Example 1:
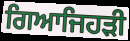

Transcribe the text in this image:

ਗਿਆਜਿਹੜੀ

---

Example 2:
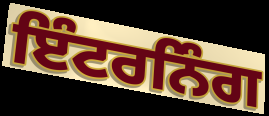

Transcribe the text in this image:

ਇੰਟਰਨਿੰਗ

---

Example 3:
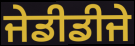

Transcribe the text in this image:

ਜੇਡੀਡੀਜੇ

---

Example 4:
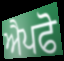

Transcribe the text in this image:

ਐਪਫੋ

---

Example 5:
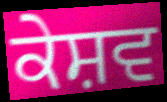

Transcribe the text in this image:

ਕੇਸ਼ਵ